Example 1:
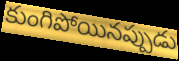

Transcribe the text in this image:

కుంగిపోయినప్పుడు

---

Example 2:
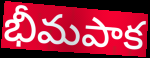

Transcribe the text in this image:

భీమపాక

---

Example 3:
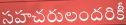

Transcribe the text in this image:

సహచరులందరికీ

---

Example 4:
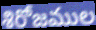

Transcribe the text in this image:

శిరోజముల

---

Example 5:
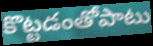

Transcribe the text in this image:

కొట్టడంతోపాటు